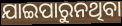
ଯାଇପାରୁନଥିବା